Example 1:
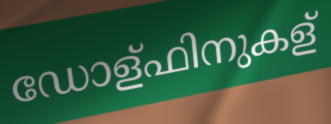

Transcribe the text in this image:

ഡോള്ഫിനുകള്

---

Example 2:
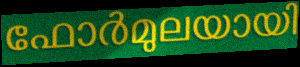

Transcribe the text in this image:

ഫോർമുലയായി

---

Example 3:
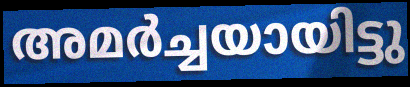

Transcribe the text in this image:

അമർച്ചയായിട്ടു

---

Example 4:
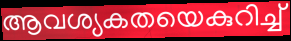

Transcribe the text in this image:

ആവശ്യകതയെകുറിച്ച്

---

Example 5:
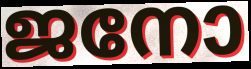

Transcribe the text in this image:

ജനോ